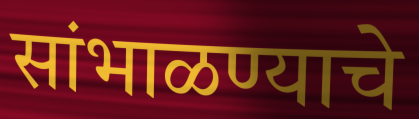
सांभाळण्याचे